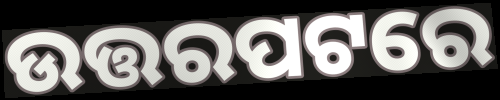
ଉତ୍ତରପଟରେ